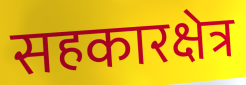
सहकारक्षेत्र